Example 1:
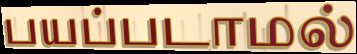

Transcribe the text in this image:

பயப்படாமல்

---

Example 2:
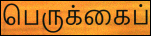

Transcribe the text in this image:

பெருக்கைப்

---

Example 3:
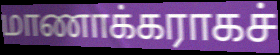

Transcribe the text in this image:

மாணாக்கராகச்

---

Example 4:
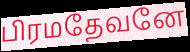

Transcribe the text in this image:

பிரமதேவனே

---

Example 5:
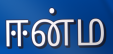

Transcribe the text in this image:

ஈன்ம